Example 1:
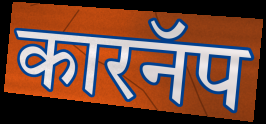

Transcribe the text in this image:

कारनॅप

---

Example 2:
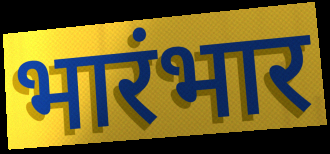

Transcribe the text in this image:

भारंभार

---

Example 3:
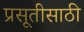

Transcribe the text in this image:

प्रसूतीसाठी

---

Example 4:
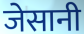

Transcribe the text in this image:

जेसानी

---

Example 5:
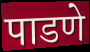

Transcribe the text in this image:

पाडणे